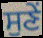
ਸੁਣੇਂ